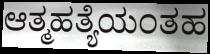
ಆತ್ಮಹತ್ಯೆಯಂತಹ